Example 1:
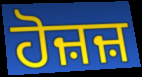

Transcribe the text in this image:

ਹੋਜ਼ਜ਼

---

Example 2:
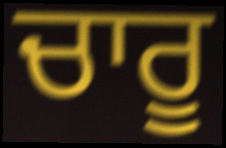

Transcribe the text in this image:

ਚਾਰੂ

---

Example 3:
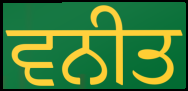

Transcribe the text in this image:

ਵਨੀਤ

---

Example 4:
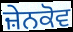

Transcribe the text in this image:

ਜ਼ੇਨਕੋਵ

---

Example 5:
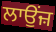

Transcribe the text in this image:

ਲਾਉਂਜ਼